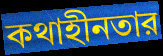
কথাহীনতার